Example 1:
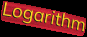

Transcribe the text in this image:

Logarithm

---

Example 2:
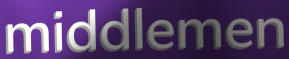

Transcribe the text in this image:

middlemen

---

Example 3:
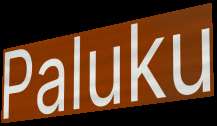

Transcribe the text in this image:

Paluku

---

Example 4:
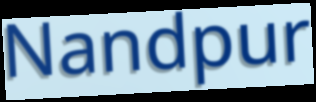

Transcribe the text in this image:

Nandpur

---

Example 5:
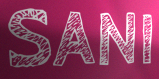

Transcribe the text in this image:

SANI